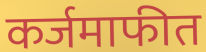
कर्जमाफीत